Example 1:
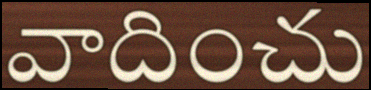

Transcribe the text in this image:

వాదించు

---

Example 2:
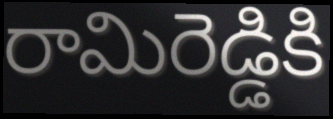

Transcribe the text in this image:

రామిరెడ్డికి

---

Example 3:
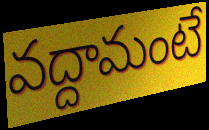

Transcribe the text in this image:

వద్దామంటే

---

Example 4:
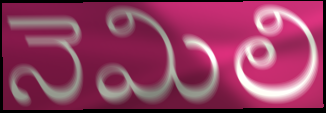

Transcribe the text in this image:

నెమిలి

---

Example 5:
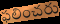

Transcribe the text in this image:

ఫలించరు